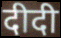
दीदी